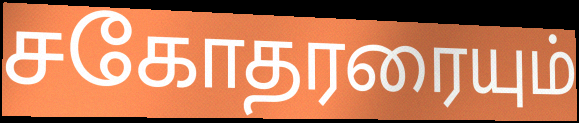
சகோதரரையும்